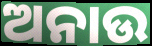
ଅନାଉ